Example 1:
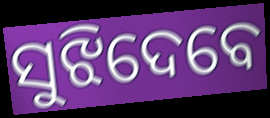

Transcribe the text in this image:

ସୁଝିଦେବେ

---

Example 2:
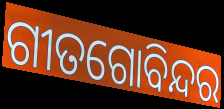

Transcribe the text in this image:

ଗୀତଗୋବିନ୍ଦର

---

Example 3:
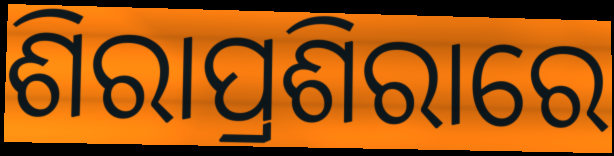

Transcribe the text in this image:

ଶିରାପ୍ରଶିରାରେ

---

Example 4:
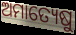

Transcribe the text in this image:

ଅମାତ୍ୟେଷୁ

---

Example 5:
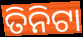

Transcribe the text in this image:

ତିନିଟା